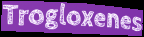
Trogloxenes